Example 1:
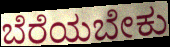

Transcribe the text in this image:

ಬೆರೆಯಬೇಕು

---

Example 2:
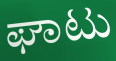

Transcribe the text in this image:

ಘಾಟು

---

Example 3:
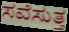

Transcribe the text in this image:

ಸವೆಸುತ್ತ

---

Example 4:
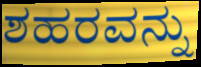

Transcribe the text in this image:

ಶಹರವನ್ನು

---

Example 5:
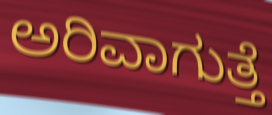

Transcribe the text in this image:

ಅರಿವಾಗುತ್ತೆ